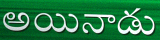
అయినాడు